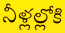
నీళ్లల్లోకి